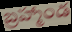
బ్రహ్మాండ